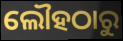
ଲୌହଠାରୁ